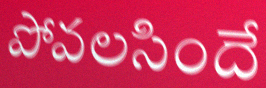
పోవలసిందే